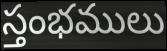
స్తంభములు